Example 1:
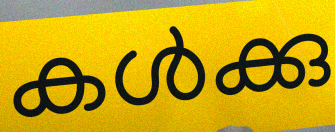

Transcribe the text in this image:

കൾക്കു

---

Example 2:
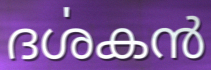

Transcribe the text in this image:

ദൎശകൻ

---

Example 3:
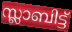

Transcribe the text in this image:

സ്ലാബിട്ട്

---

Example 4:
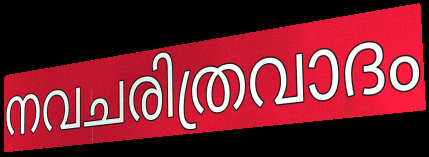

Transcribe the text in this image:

നവചരിത്രവാദം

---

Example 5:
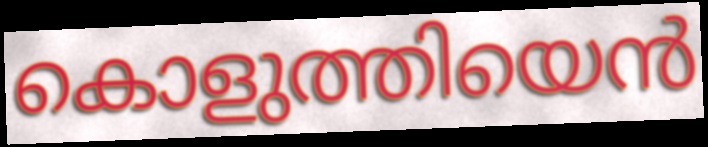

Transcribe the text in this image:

കൊളുത്തിയെൻ